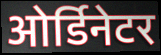
ओर्डिनेटर